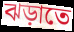
ঝড়াতে